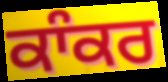
ਕਾੰਕਰ